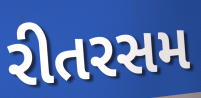
રીતરસમ